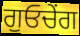
ਗੁਓਚੇਂਗ